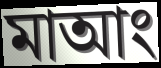
মাআং